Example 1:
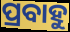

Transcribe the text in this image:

ପ୍ରବାହୁ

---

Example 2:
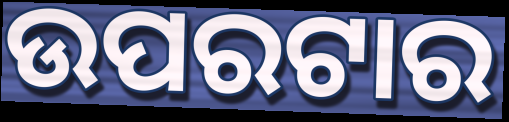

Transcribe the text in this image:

ଉପରଟାର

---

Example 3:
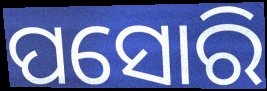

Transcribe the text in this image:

ପସୋରି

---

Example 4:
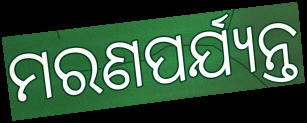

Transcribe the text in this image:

ମରଣପର୍ଯ୍ୟନ୍ତ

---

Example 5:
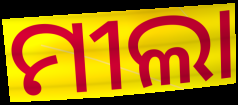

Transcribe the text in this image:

ମୀଲା